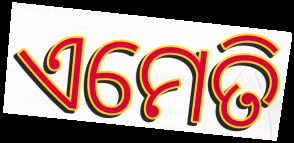
ଏମେତି